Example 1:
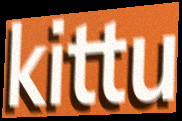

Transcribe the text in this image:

kittu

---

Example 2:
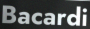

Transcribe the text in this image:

Bacardi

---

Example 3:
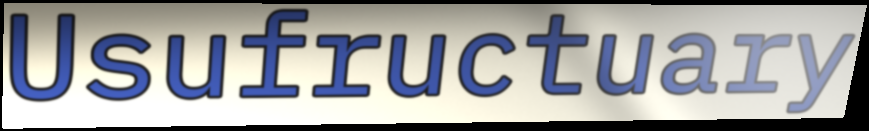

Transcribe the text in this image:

Usufructuary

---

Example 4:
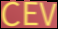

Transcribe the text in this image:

CEV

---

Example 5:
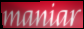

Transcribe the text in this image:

maniar